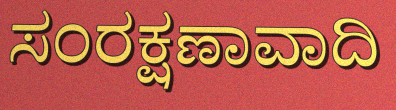
ಸಂರಕ್ಷಣಾವಾದಿ